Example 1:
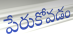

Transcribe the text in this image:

పేరుకోవడం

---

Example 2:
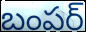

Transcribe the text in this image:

బంపర్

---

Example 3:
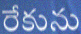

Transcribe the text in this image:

రేకును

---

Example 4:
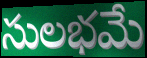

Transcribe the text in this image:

సులభమే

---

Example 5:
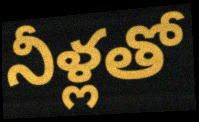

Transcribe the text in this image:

నీళ్లతో